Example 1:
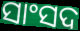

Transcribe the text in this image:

ସାଂସଦ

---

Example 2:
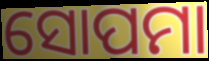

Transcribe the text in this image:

ସୋପମା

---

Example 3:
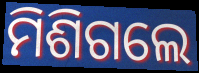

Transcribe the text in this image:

ମିଶିଗଲେ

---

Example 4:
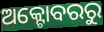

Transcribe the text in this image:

ଅକ୍ଟୋବରରୁ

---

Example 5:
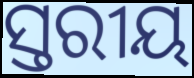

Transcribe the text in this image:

ସ୍ତରୀୟ